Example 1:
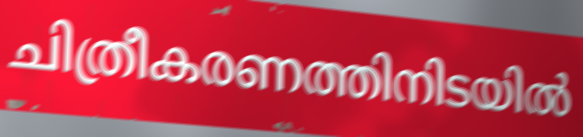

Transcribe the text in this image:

ചിത്രീകരണത്തിനിടയിൽ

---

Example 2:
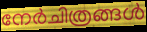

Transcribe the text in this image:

നേർചിത്രങ്ങൾ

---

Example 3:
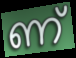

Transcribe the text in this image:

ണ്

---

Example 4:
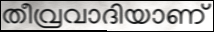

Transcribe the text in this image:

തീവ്രവാദിയാണ്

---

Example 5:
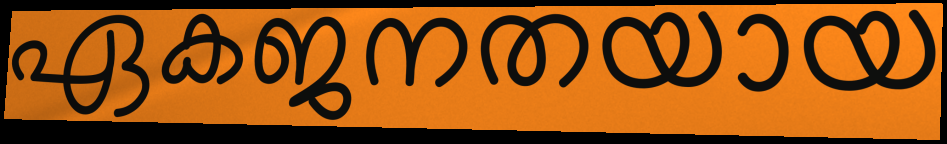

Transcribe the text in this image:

ഏകജനതയായ